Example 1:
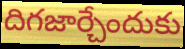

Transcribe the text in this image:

దిగజార్చేందుకు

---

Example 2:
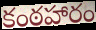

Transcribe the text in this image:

కంఠహారం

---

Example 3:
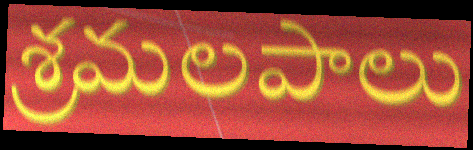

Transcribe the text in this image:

శ్రమలపాలు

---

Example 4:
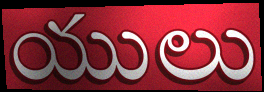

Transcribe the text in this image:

యులు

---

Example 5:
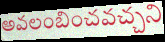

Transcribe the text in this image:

అవలంబించవచ్చని